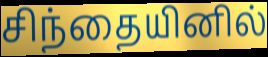
சிந்தையினில்